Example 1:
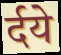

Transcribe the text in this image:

र्दये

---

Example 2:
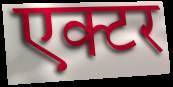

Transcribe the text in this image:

एक्टर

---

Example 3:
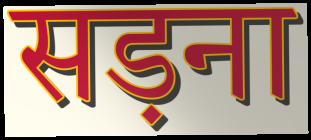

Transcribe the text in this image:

सड़ना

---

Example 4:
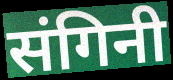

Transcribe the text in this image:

संगिनी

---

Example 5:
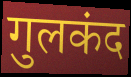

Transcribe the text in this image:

गुलकंद